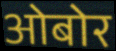
ओबोर